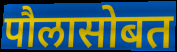
पौलासोबत